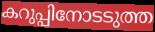
കറുപ്പിനോടടുത്ത